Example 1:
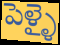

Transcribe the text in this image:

పెళ్ళై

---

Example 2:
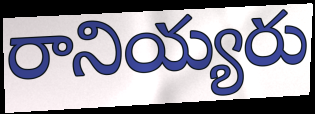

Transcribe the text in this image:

రానియ్యరు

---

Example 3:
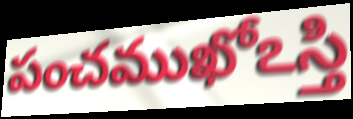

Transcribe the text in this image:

పంచముఖోఽస్తి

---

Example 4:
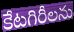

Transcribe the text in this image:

కేటగిరీలను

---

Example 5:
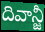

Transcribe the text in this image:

దివాన్జీ